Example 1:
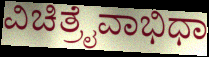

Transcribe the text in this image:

ವಿಚಿತ್ರೈವಾಭಿಧಾ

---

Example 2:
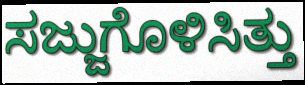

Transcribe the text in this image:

ಸಜ್ಜುಗೊಳಿಸಿತ್ತು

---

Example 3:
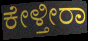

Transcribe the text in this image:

ಕೇಳ್ತೀರಾ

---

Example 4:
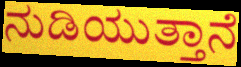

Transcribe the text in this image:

ನುಡಿಯುತ್ತಾನೆ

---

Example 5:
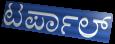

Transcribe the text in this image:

ಟರ್ಪಾಲ್